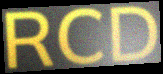
RCD